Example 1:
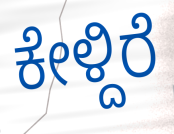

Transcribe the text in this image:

ಕೇಳ್ದಿರೆ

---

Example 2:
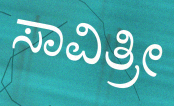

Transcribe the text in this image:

ಸಾವಿತ್ರೀ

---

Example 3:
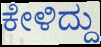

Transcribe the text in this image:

ಕೇಳಿದ್ದು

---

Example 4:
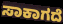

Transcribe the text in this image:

ಸಾಕಾಗದೆ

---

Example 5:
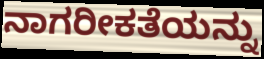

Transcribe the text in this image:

ನಾಗರೀಕತೆಯನ್ನು